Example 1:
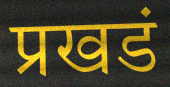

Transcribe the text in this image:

प्रखडं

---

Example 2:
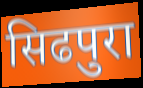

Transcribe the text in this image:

सिढपुरा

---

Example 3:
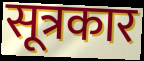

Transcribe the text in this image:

सूत्रकार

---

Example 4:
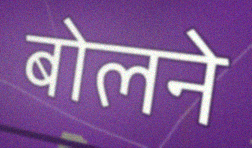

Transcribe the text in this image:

बोलने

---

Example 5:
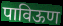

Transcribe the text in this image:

पाविऊण